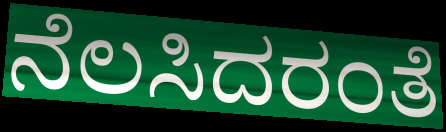
ನೆಲಸಿದರಂತೆ